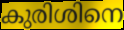
കുരിശിനെ